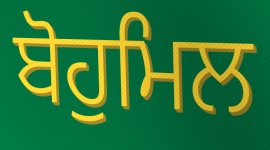
ਬੋਹੁਮਿਲ